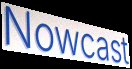
Nowcast